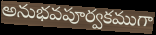
అనుభవపూర్వకముగా